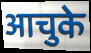
आचुके